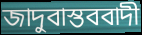
জাদুবাস্তববাদী